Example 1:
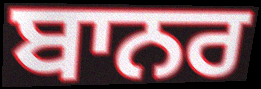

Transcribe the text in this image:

ਬਾਨਰ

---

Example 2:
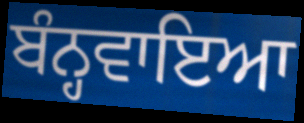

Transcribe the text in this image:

ਬੰਨ੍ਹਵਾਇਆ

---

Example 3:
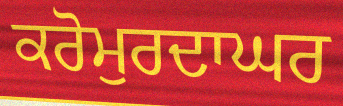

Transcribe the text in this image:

ਕਰੋਮੁਰਦਾਘਰ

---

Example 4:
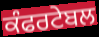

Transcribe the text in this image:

ਕੰਫਰਟੇਬਲ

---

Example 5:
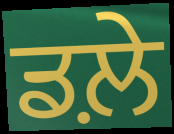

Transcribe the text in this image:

ਡਲ਼ੇ